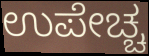
ಉಪೇಚ್ಚ